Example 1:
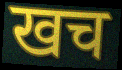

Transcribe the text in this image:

खच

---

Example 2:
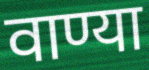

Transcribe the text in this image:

वाण्या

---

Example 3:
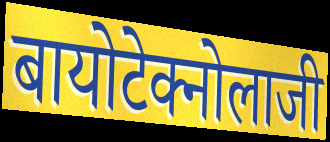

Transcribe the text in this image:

बायोटेक्नोलाजी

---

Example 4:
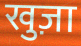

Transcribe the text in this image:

खुज़ा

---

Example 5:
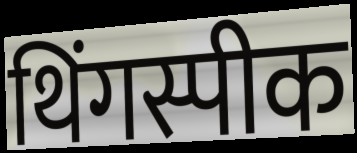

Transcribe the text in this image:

थिंगस्पीक